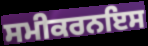
ਸਮੀਕਰਨਇਸ